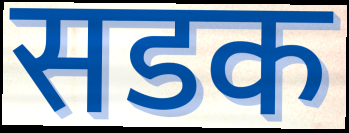
सडक